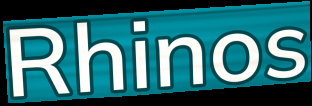
Rhinos